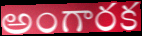
అంగారక